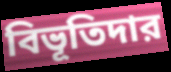
বিভূতিদার